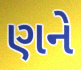
ણને